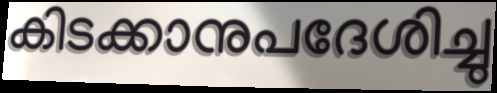
കിടക്കാനുപദേശിച്ചു